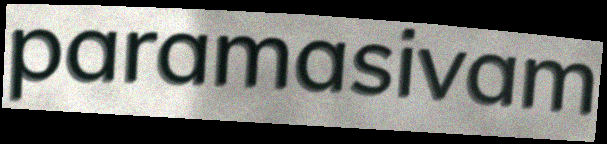
paramasivam